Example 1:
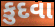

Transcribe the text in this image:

કુદવા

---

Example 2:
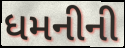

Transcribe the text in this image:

ધમનીની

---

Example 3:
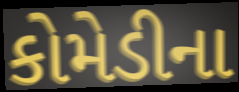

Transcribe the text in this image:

કોમેડીના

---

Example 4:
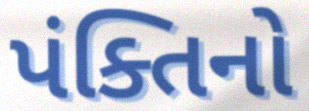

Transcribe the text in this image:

પંક્તિનો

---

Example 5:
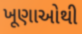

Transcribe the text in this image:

ખૂણાઓથી